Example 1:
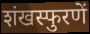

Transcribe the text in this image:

शंखस्फुरणें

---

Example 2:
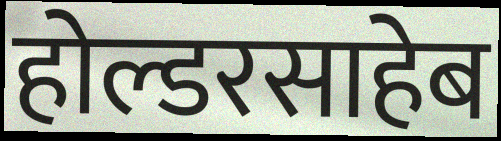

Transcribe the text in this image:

होल्डरसाहेब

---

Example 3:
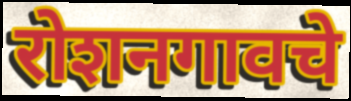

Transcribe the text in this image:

रोशनगावचे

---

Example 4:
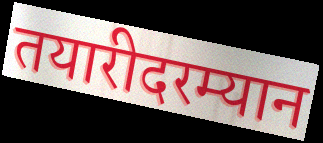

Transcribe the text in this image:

तयारीदरम्यान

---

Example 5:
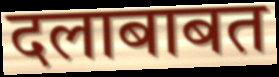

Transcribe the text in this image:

दलाबाबत